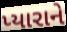
પ્યારાને